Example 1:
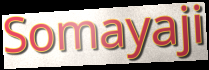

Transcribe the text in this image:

Somayaji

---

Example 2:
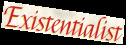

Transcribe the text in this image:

Existentialist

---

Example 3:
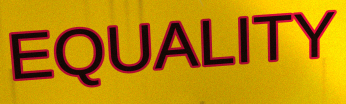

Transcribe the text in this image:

EQUALITY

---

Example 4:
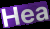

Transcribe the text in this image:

Hea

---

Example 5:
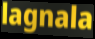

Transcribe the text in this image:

lagnala